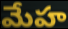
మేహ